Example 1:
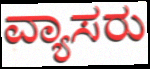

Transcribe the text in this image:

ವ್ಯಾಸರು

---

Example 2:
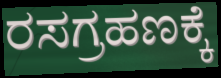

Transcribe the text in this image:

ರಸಗ್ರಹಣಕ್ಕೆ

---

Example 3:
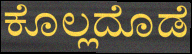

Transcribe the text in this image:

ಕೊಲ್ಲದೊಡೆ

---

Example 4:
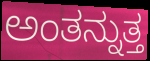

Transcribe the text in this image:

ಅಂತನ್ನುತ್ತ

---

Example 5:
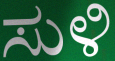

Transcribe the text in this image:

ಸುಳಿ